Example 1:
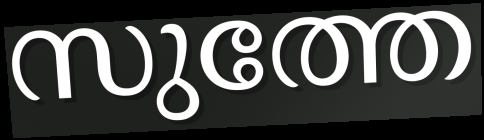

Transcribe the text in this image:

സുത്തേ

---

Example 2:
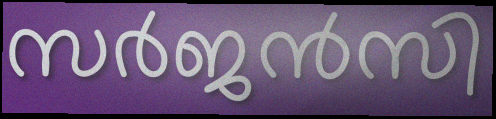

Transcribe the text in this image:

സർജൻസി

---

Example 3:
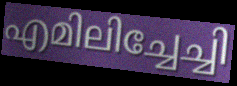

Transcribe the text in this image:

എമിലിച്ചേച്ചി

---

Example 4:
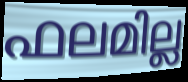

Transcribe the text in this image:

ഫലമില്ല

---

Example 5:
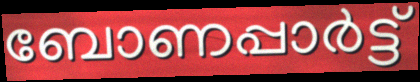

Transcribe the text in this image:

ബോണപ്പാർട്ട്